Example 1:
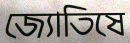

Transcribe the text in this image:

জ্যোতিষে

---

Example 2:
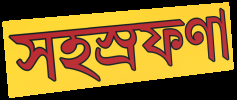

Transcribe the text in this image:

সহস্রফণা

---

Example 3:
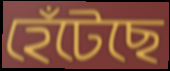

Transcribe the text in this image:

হেঁটেছে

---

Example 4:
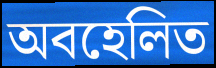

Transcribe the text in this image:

অবহেলিত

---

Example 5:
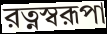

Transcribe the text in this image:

রত্নস্বরূপা